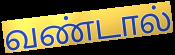
வண்டால்